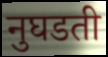
नुघडती